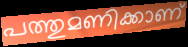
പത്തുമണിക്കാണ്